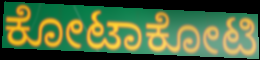
ಕೋಟಾಕೋಟಿ